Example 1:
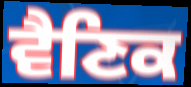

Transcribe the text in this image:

ਵੈਣਿਕ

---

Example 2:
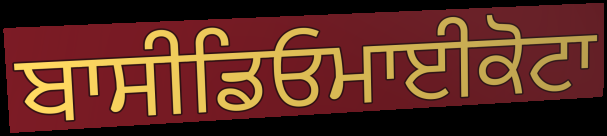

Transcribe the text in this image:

ਬਾਸੀਡਿਓਮਾਈਕੋਟਾ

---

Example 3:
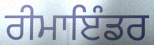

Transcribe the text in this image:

ਰੀਮਾਇੰਡਰ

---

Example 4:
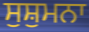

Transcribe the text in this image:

ਸੁਸ਼ੁਮਨਾ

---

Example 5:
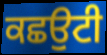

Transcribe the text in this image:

ਕਛਉਟੀ